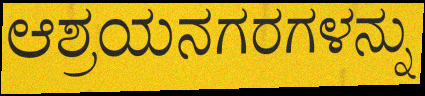
ಆಶ್ರಯನಗರಗಳನ್ನು